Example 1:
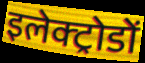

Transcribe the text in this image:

इलेक्ट्रोडों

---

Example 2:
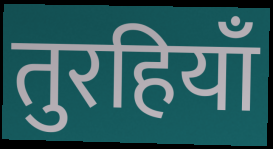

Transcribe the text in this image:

तुरहियाँ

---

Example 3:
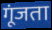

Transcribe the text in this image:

गूंजता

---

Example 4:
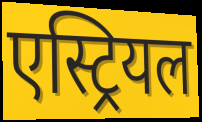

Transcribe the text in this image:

एस्ट्रियल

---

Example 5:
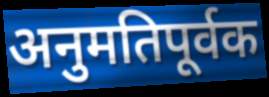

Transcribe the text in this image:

अनुमतिपूर्वक